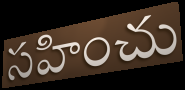
సహించు